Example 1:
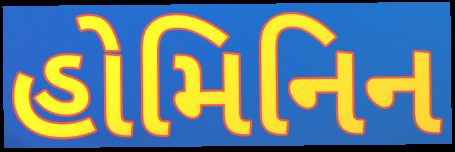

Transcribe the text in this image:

હોમિનિન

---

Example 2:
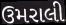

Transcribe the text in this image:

ઉમરાલી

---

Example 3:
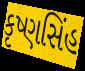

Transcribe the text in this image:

કૃષ્ણસિંહ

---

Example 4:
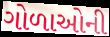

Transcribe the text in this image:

ગોળાઓની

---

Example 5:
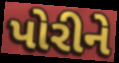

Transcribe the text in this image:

પોરીને